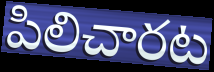
పిలిచారట